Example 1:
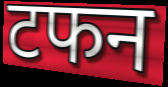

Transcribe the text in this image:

टफन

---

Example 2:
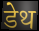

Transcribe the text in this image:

डेथ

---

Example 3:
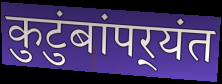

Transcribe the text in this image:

कुटुंबांपर्यंत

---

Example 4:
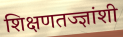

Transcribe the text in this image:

शिक्षणतज्ज्ञांशी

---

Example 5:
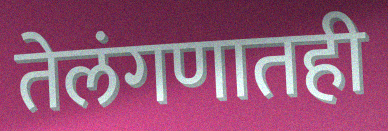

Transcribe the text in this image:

तेलंगणातही